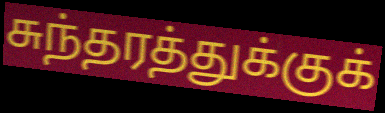
சுந்தரத்துக்குக்